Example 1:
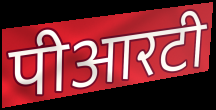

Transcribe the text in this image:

पीआरटी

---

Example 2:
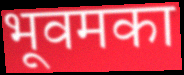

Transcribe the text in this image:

भूवमका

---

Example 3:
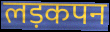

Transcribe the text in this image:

लड़कपन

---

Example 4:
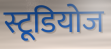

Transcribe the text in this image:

स्टूडियोज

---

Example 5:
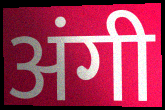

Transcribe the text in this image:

अंगी